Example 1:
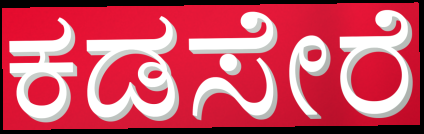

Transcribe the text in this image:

ಕಡಸೇರೆ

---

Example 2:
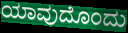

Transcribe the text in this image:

ಯಾವುದೊಂದು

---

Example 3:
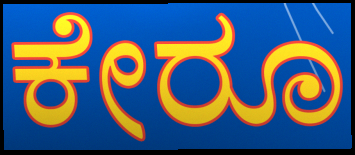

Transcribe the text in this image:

ಕೇರೂ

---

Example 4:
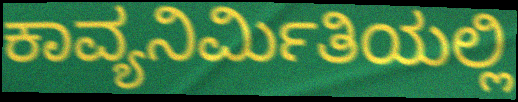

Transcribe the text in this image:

ಕಾವ್ಯನಿರ್ಮಿತಿಯಲ್ಲಿ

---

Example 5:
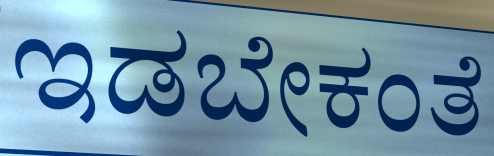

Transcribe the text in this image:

ಇಡಬೇಕಂತೆ